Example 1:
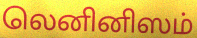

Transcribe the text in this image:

லெனினிஸம்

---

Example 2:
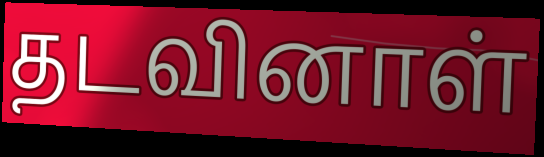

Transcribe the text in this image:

தடவினாள்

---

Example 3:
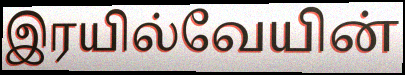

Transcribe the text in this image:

இரயில்வேயின்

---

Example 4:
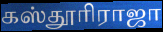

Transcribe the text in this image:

கஸ்தூரிராஜா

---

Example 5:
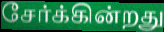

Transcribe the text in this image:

சேர்க்கின்றது